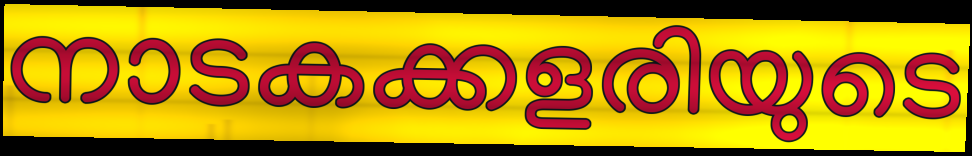
നാടകക്കളരിയുടെ